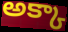
అక్కా